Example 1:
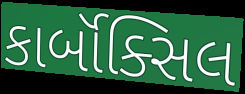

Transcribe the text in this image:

કાર્બૉક્સિલ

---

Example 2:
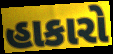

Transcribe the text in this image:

હાકારો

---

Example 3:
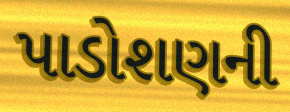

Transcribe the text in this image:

પાડોશણની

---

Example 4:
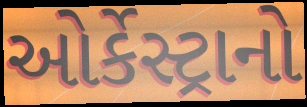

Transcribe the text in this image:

ઓર્કેસ્ટ્રાનો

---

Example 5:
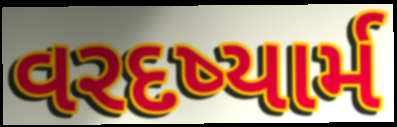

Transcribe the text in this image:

વરદષ્યાર્મ